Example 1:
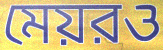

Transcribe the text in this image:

মেয়রও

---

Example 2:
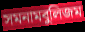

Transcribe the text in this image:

সমনামবুলিজম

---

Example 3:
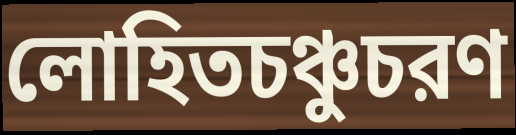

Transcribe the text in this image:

লোহিতচঞ্চুচরণ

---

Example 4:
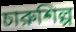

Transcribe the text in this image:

চারুশিল্প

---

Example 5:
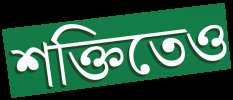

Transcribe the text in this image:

শক্তিতেও